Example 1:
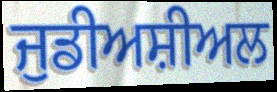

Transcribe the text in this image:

ਜੁਡੀਅਸ਼ੀਅਲ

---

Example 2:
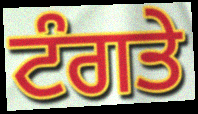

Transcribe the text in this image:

ਟੰਗਤੇ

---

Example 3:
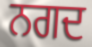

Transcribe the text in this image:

ਨਗਦ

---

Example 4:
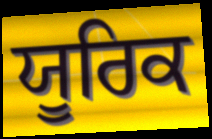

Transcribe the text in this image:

ਯੂਰਿਕ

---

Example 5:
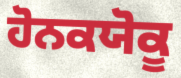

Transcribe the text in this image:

ਹੋਨਕਯੋਕੂ